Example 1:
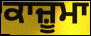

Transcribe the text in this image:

ਕਾਜ਼ੂਮਾ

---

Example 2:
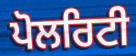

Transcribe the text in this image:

ਪੋਲਰਿਟੀ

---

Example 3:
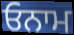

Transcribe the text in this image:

ਓਨਾਮ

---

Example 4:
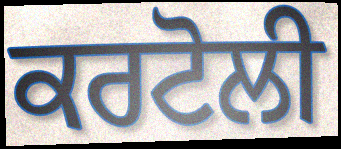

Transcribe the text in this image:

ਕਰਟੋਲੀ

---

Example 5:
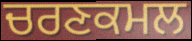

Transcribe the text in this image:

ਚਰਣਕਮਲ